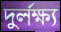
দুর্লক্ষ্য